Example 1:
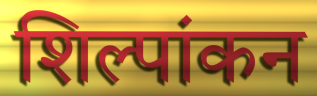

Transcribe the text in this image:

शिल्पांकन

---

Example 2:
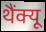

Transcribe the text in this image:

थैंक्यू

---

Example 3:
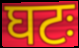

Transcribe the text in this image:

घटः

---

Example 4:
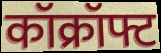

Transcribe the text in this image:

कॉक्रॉफ्ट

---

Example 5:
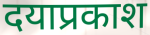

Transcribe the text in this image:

दयाप्रकाश